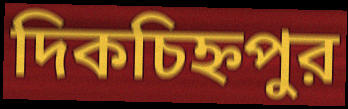
দিকচিহ্নপুর